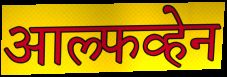
आल्फव्हेन